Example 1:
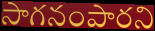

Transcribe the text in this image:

సాగనంపారని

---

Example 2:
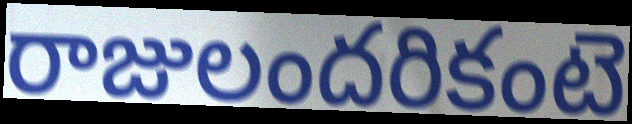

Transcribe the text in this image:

రాజులందరికంటె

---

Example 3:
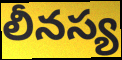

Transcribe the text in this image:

లీనస్య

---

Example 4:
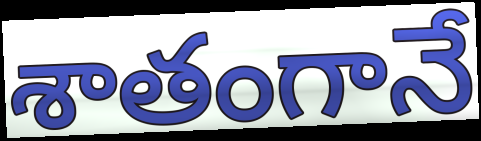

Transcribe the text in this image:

శాతంగానే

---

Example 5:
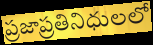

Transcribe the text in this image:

ప్రజాప్రతినిధులలో